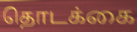
தொடக்கை